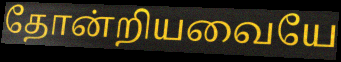
தோன்றியவையே